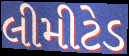
લીમીટેડ